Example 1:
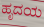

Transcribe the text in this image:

ಹೃದಯ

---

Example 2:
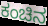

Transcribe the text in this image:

ಕಂಚಿನ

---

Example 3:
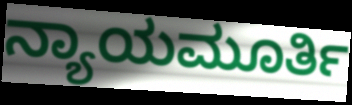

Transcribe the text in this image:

ನ್ಯಾಯಮೂರ್ತಿ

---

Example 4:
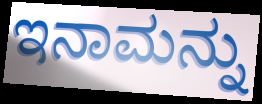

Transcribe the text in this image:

ಇನಾಮನ್ನು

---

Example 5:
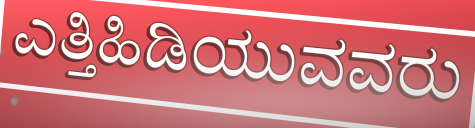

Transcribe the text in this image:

ಎತ್ತಿಹಿಡಿಯುವವರು